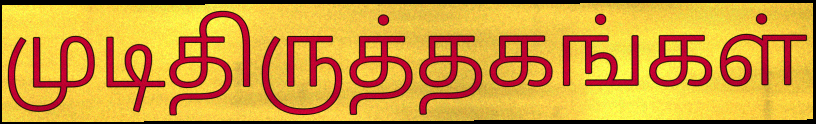
முடிதிருத்தகங்கள்